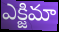
ఎక్జిమా